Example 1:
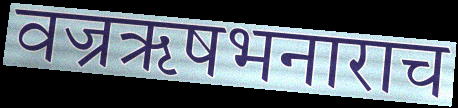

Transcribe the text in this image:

वज्रऋषभनाराच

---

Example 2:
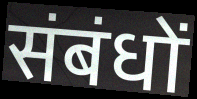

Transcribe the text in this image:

संबंधों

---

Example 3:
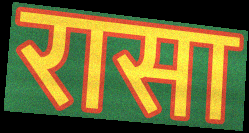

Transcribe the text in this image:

रासा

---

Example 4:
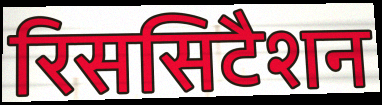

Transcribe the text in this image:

रिससिटैशन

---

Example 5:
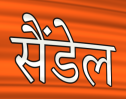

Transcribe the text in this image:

सैंडेल